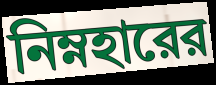
নিম্নহারের